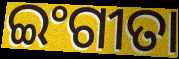
ଇଂଗୀତା